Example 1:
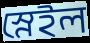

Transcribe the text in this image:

স্নেইল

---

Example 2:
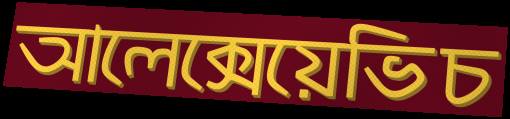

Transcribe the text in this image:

আলেক্সেয়েভিচ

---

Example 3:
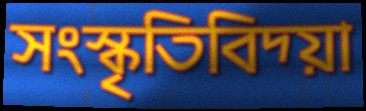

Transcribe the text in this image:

সংস্কৃতিবিদ্য়া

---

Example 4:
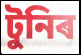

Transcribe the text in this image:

টুনিৰ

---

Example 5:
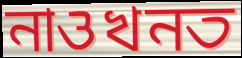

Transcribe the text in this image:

নাওখনত